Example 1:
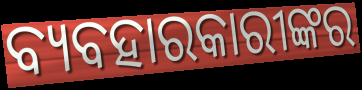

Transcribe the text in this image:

ବ୍ୟବହାରକାରୀଙ୍କର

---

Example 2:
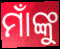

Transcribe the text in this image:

ମାଁଙ୍କୁ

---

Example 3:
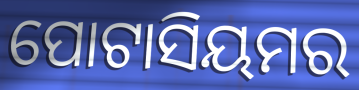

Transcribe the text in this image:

ପୋଟାସିୟମର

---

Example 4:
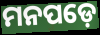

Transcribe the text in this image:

ମନପଡ଼େ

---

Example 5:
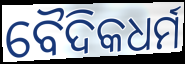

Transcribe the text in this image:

ବୈଦିକଧର୍ମ